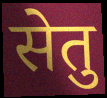
सेतु